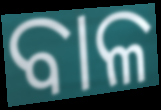
ବାଳ